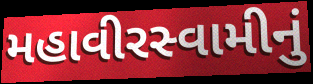
મહાવીરસ્વામીનું